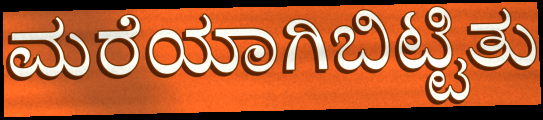
ಮರೆಯಾಗಿಬಿಟ್ಟಿತು